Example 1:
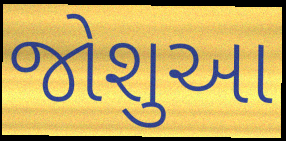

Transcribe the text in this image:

જોશુઆ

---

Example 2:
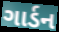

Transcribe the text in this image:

ગાર્ડન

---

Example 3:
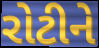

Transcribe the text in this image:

રોટીને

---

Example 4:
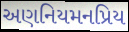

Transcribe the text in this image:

અણનિયમનપ્રિય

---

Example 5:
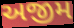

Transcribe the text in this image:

અજીમ